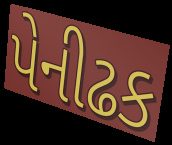
પેનીઢક